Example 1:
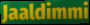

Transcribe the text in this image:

Jaaldimmi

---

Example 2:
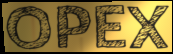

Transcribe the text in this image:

OPEX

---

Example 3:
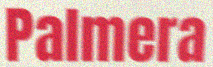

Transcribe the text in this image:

Palmera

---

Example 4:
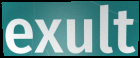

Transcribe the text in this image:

exult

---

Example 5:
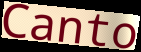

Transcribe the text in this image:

Canto